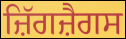
ਜ਼ਿੱਗਜ਼ੈਗਸ